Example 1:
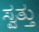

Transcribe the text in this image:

ಸ್ವತ್ತು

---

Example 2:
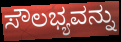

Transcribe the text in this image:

ಸೌಲಭ್ಯವನ್ನು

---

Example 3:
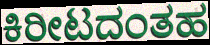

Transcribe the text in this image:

ಕಿರೀಟದಂತಹ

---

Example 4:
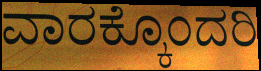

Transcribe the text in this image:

ವಾರಕ್ಕೊಂದರಿ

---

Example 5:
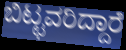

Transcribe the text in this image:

ಬಿಟ್ಟವರಿದ್ದಾರೆ